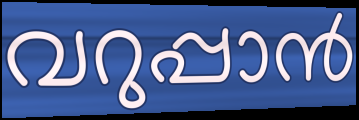
വറുപ്പാൻ